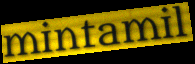
mintamil